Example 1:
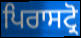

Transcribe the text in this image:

ਪਿਰਾਸਟ੍ਰੋ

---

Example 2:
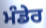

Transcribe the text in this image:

ਮੰਡੇਰ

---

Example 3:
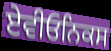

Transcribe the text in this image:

ਏਵੀਓਨਿਕਸ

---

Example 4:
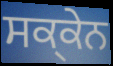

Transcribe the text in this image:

ਸਕ੍ਕੇਨ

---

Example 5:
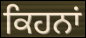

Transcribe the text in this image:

ਕਿਹਨਾਂ